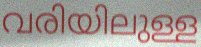
വരിയിലുള്ള